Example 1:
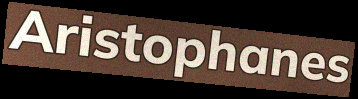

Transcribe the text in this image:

Aristophanes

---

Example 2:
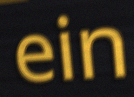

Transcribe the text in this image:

ein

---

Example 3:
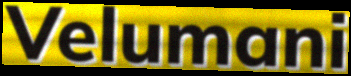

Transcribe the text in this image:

Velumani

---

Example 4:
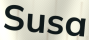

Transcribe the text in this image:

Susa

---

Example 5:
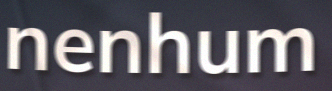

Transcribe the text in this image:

nenhum